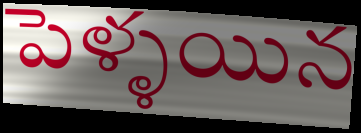
పెళ్ళయిన